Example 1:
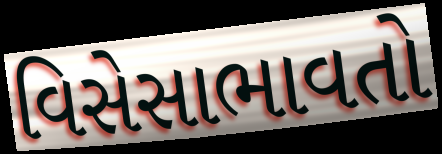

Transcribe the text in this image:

વિસેસાભાવતો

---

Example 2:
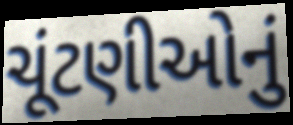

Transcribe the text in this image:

ચૂંટણીઓનું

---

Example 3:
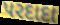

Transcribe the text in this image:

પરદાદા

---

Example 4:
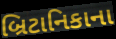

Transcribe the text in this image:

બ્રિટાનિકાના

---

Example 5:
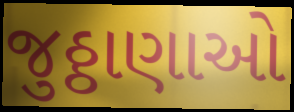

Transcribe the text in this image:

જુઠ્ઠાણાઓ